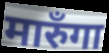
मारुँगा